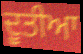
ਦੂਤੀਆ